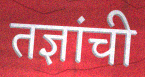
तज्ञांची